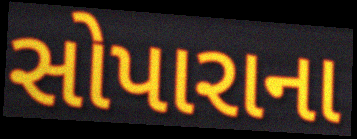
સોપારાના